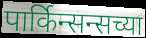
पार्किन्सन्सच्या